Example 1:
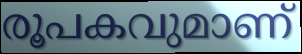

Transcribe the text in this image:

രൂപകവുമാണ്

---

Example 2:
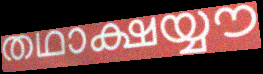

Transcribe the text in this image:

തഥാക്ഷയ്യൗ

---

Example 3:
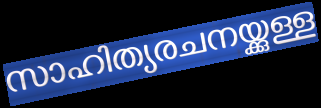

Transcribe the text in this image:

സാഹിത്യരചനയ്ക്കുള്ള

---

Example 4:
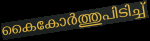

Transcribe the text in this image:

കൈകോർത്തുപിടിച്ച്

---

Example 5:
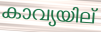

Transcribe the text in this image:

കാവ്യയില്